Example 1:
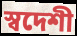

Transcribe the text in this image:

স্বদেশী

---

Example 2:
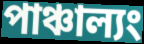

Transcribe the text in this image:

পাঞ্চাল্যং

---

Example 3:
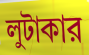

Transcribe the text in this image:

লুটাকার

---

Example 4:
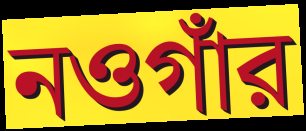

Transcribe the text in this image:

নওগাঁর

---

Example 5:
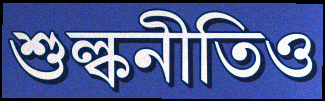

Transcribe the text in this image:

শুল্কনীতিও